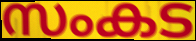
സംകട